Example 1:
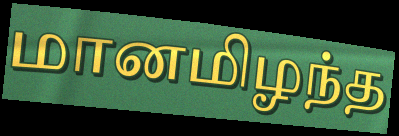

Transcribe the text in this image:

மானமிழந்த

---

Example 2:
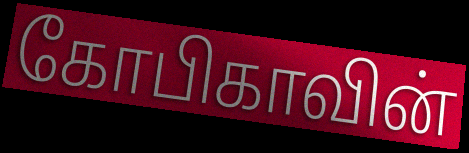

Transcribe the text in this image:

கோபிகாவின்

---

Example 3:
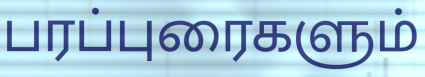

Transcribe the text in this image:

பரப்புரைகளும்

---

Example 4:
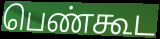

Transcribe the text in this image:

பெண்கூட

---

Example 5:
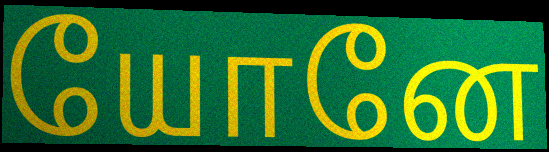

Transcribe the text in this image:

யோனே